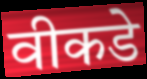
वीकडे